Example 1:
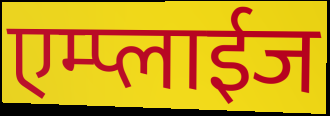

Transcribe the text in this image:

एम्प्लाईज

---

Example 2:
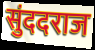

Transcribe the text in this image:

सुंददराज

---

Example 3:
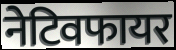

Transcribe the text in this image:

नेटिवफायर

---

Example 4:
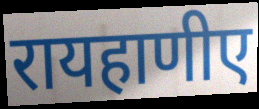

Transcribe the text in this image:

रायहाणीए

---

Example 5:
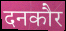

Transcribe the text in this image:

दनकौर